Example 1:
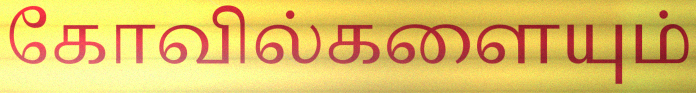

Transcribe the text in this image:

கோவில்களையும்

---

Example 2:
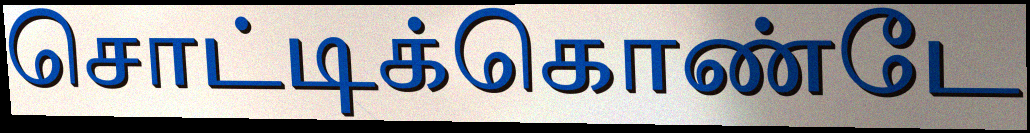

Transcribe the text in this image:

சொட்டிக்கொண்டே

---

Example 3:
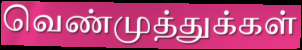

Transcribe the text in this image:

வெண்முத்துக்கள்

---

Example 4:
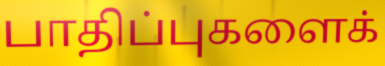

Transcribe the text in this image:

பாதிப்புகளைக்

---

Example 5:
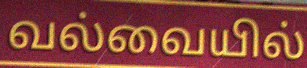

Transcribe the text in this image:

வல்வையில்